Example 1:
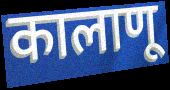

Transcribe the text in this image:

कालाणू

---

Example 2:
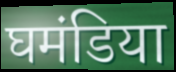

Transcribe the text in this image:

घमंडिया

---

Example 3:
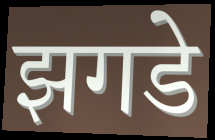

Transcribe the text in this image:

झगडे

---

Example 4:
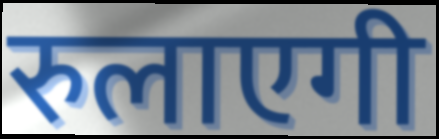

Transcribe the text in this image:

रुलाएगी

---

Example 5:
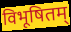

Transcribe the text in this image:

विभूषितम्